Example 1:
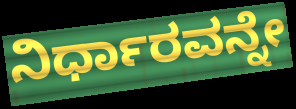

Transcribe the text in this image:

ನಿರ್ಧಾರವನ್ನೇ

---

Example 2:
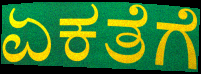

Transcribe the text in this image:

ಏಕತೆಗೆ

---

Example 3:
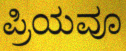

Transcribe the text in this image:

ಪ್ರಿಯವೂ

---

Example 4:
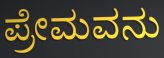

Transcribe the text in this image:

ಪ್ರೇಮವನು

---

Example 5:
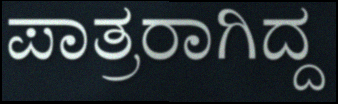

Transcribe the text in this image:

ಪಾತ್ರರಾಗಿದ್ದ